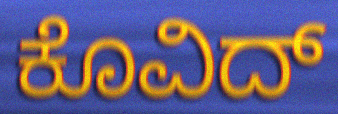
ಕೊವಿದ್